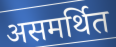
असमर्थित